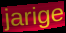
jarige